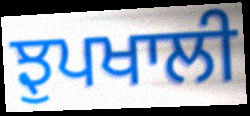
ਝੁਪਖਾਲੀ